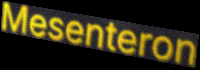
Mesenteron